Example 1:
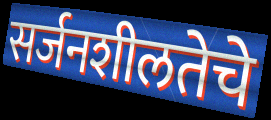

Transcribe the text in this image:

सर्जनशीलतेचे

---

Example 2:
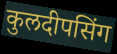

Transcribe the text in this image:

कुलदीपसिंग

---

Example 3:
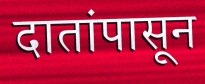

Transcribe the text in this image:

दातांपासून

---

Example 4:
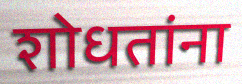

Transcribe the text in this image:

शोधतांना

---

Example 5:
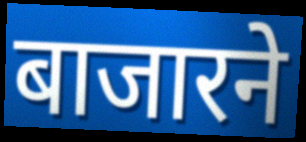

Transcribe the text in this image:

बाजारने